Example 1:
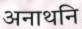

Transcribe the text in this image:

अनाथनि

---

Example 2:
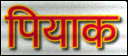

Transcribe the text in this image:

पियाक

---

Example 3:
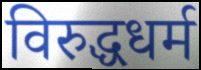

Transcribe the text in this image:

विरुद्धधर्म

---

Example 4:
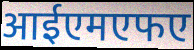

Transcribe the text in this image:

आईएमएफए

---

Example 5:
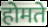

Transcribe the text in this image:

होमते